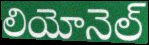
లియోనెల్